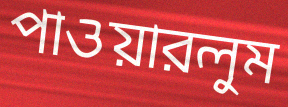
পাওয়ারলুম